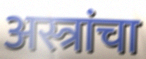
अस्त्रांचा